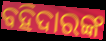
ବହିଦାରଙ୍କ